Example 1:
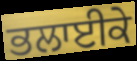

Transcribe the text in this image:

ਭਲਾਈਕੇ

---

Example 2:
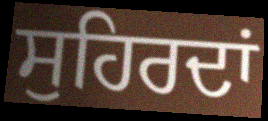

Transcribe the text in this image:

ਸੁਹਿਰਦਾਂ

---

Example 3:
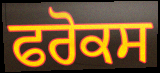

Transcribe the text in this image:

ਫਰੋਕਸ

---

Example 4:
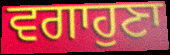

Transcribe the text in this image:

ਵਗਾਹੁਣਾ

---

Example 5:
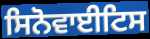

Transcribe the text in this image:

ਸਿਨੋਵਾਈਟਿਸ